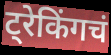
ट्रेकिंगचं